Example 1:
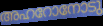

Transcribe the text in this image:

അഹറോനോടു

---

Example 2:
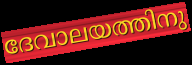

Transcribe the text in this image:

ദേവാലയത്തിനു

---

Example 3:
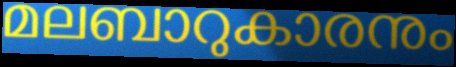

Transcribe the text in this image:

മലബാറുകാരനും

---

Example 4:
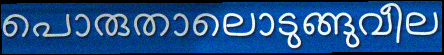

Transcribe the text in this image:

പൊരുതാലൊടുങ്ങുവീല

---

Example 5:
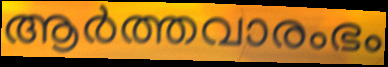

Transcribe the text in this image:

ആർത്തവാരംഭം